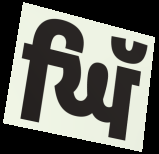
ਘਿੱ